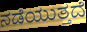
ನಡೆಯುತ್ತದೆ